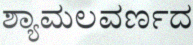
ಶ್ಯಾಮಲವರ್ಣದ